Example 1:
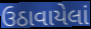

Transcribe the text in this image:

ઉઠાવાયેલાં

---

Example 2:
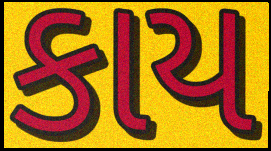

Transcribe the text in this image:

કાય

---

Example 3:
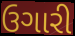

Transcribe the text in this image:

ઉગારી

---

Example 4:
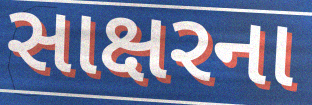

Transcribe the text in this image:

સાક્ષરના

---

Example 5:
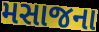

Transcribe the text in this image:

મસાજના